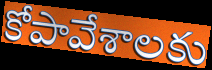
కోపావేశాలకు